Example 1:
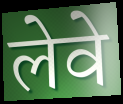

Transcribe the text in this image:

लेवे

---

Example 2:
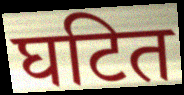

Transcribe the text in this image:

घटित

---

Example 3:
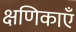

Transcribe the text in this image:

क्षणिकाएँ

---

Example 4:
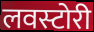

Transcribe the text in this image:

लवस्‍टोरी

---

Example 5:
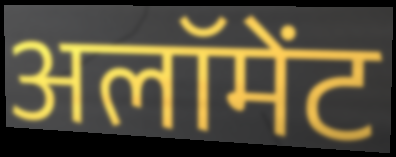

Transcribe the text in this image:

अलॉमेंट